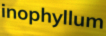
inophyllum